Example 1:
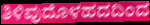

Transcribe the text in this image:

ತಿಳಿವುದೊಳಹದದಿಂದ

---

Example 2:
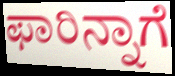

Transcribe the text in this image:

ಫಾರಿನ್ನಾಗೆ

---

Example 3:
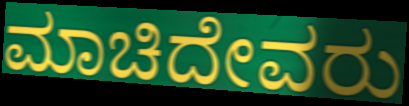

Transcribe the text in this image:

ಮಾಚಿದೇವರು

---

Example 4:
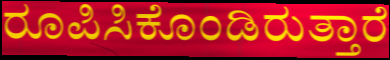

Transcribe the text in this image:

ರೂಪಿಸಿಕೊಂಡಿರುತ್ತಾರೆ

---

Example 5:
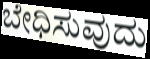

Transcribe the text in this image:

ಬೇಧಿಸುವುದು